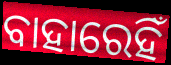
ବାହାରେହିଁ